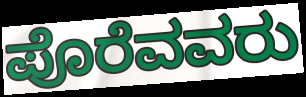
ಪೊರೆವವರು